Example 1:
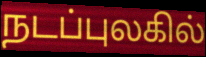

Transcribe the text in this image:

நடப்புலகில்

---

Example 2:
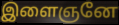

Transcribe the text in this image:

இளைஞனே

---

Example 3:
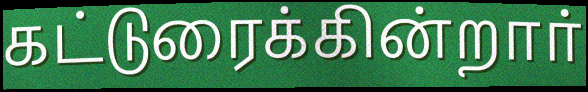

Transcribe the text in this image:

கட்டுரைக்கின்றார்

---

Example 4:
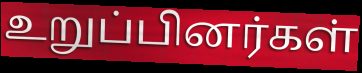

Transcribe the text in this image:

உறுப்பினர்கள்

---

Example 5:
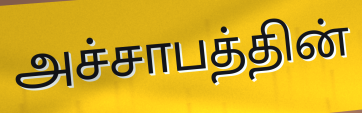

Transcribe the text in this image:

அச்சாபத்தின்